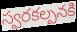
స్వరకల్పనకి